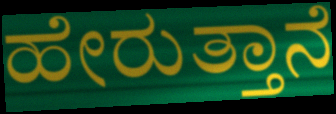
ಹೇರುತ್ತಾನೆ